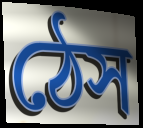
ঠেস